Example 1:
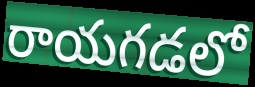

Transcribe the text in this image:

రాయగడలో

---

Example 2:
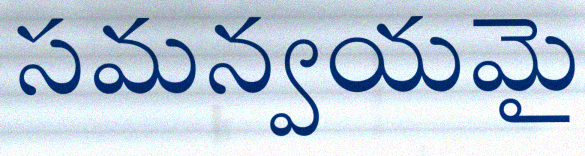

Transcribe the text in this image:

సమన్వయమై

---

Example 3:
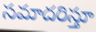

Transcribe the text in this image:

సమాదరిస్తూ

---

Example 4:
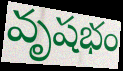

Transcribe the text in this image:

వృషభం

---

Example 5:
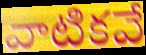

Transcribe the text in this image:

వాటికవే